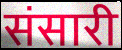
संसारी